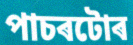
পাচৰটোৰ